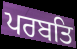
ਪਰਬਤਿ